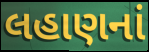
લહાણનાં